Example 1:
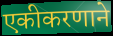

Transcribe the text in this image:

एकीकरणाने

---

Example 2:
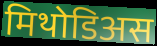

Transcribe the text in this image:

मिथोडिअस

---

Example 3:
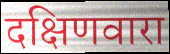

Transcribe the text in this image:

दक्षिणवारा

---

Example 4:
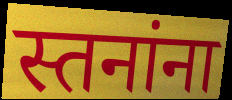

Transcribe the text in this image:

स्तनांना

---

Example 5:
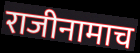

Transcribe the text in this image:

राजीनामाच